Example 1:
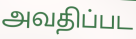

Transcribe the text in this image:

அவதிப்பட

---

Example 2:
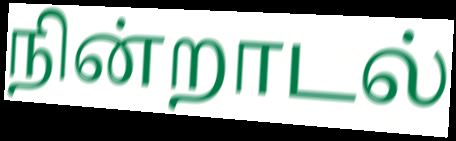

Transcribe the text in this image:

நின்றாடல்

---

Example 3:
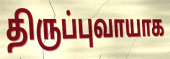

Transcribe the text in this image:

திருப்புவாயாக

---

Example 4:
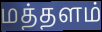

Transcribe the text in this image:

மத்தளம்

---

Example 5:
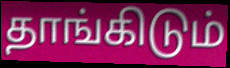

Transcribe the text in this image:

தாங்கிடும்